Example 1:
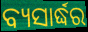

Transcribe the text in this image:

ବ୍ୟସାର୍ଦ୍ଧର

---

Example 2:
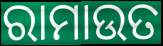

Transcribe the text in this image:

ରାମାଉତ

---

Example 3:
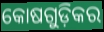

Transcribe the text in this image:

କୋଷଗୁଡ଼ିକର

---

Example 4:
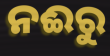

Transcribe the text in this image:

ନଈରୁ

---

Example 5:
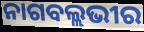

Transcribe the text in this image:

ନାଗବଲ୍ଲଭୀର